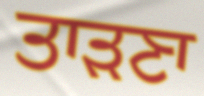
ਤਾੜਣਾ